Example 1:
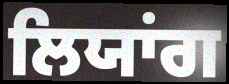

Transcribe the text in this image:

ਲਿਯਾਂਗ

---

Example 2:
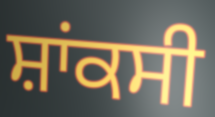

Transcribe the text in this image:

ਸ਼ਾਂਕਸੀ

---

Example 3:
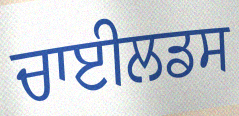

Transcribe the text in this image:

ਚਾਈਲਡਸ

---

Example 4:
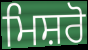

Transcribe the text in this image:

ਮਿਸ਼ਰੋ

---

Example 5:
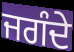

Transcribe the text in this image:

ਜਗੰਦੇ